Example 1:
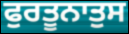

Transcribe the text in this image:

ਫੁਰਤੂਨਾਤੁਸ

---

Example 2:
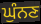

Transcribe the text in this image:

ਘੁੰਨਣ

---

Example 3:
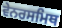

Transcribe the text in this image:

ਵੇਨਰਸਮਿਥ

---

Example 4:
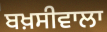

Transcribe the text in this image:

ਬਖ਼ਸੀਵਾਲਾ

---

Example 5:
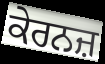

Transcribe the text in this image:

ਕੇਰਨਜ਼